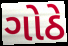
ગોઠે